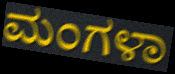
ಮಂಗಳಾ